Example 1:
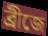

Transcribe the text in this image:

ব্রীজে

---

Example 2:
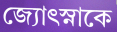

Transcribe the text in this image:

জ্যোৎস্নাকে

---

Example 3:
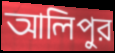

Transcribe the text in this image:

আলিপুর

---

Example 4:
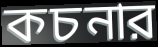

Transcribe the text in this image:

কচনার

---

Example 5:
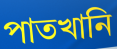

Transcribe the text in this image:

পাতখানি